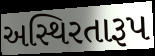
અસ્થિરતારૂપ